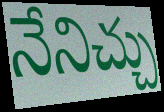
నేనిచ్చు